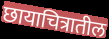
छायाचित्रातील